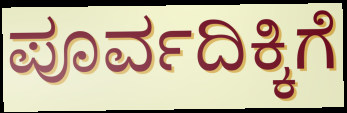
ಪೂರ್ವದಿಕ್ಕಿಗೆ